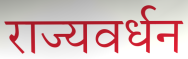
राज्यवर्धन